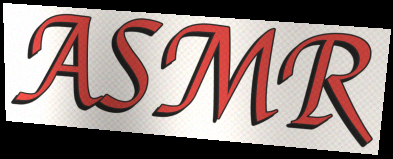
ASMR